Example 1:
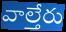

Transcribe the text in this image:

వాల్తేరు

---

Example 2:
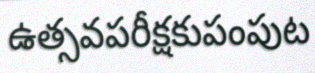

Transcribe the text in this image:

ఉత్సవపరీక్షకుపంపుట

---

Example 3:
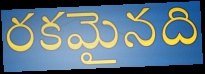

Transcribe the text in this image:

రకమైనది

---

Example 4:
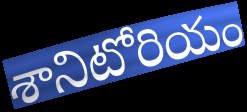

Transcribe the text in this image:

శానిటోరియం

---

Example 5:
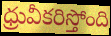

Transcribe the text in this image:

ధ్రువీకరిస్తోంది